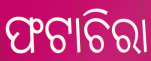
ଫଟାଚିରା